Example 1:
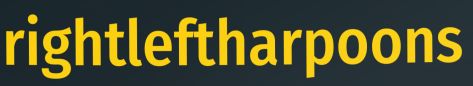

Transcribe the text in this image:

rightleftharpoons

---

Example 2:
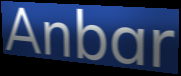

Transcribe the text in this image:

Anbar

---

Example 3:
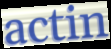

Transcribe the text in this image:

actin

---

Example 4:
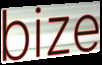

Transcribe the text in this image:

bize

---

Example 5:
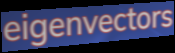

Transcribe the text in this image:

eigenvectors